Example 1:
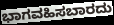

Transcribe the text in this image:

ಭಾಗವಹಿಸಬಾರದು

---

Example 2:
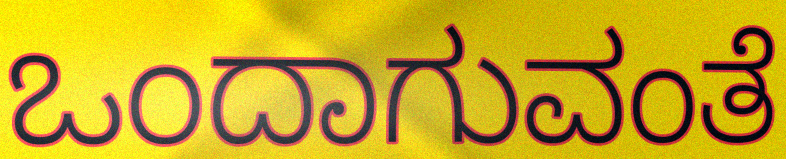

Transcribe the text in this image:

ಒಂದಾಗುವಂತೆ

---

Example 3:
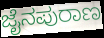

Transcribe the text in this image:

ಜೈನಪುರಾಣ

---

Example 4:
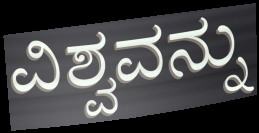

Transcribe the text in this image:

ವಿಶ್ವವನ್ನು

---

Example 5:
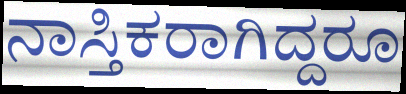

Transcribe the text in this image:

ನಾಸ್ತಿಕರಾಗಿದ್ದರೂ